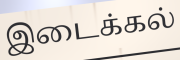
இடைக்கல்